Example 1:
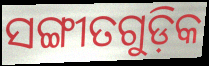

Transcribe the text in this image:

ସଙ୍ଗୀତଗୁଡ଼ିକ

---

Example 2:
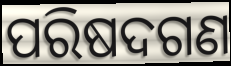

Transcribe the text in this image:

ପରିଷଦଗଣ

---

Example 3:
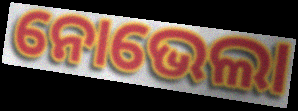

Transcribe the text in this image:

ନୋଭେଲା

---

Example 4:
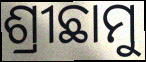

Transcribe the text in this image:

ଶ୍ରୀଛାମୁ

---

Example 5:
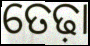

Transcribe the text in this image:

ତେଢ଼ା